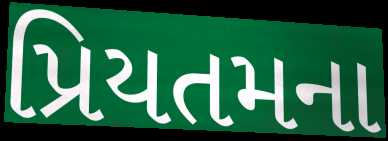
પ્રિયતમના